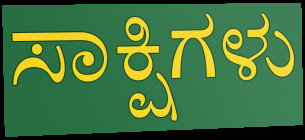
ಸಾಕ್ಷಿಗಳು